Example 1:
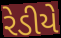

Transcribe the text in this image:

રેડીયે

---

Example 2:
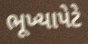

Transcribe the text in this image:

ભૂખ્યાપેટે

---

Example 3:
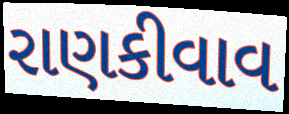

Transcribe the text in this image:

રાણકીવાવ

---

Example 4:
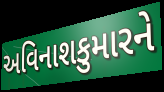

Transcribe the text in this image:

અવિનાશકુમારને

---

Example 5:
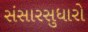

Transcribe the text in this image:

સંસારસુધારો